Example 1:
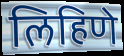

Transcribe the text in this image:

लिहिणे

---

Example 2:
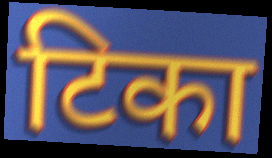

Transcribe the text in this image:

टिका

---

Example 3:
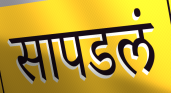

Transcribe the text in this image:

सापडलं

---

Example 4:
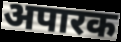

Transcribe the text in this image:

अपारक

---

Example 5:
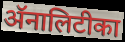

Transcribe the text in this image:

ॲनालिटीका